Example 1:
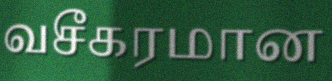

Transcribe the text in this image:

வசீகரமான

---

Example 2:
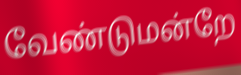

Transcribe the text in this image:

வேண்டுமன்றே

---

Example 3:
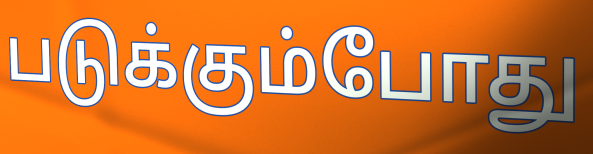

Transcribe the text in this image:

படுக்கும்போது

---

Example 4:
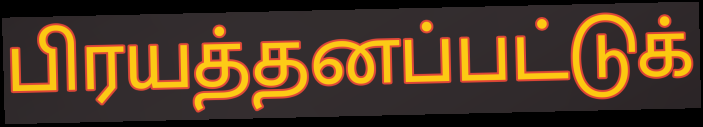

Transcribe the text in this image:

பிரயத்தனப்பட்டுக்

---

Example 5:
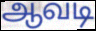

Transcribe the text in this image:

ஆவடி